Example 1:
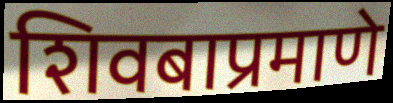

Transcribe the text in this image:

शिवबाप्रमाणे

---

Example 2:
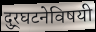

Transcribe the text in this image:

दुर्घटनेविषयी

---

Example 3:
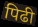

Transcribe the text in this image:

पिढी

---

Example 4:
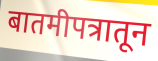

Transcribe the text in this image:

बातमीपत्रातून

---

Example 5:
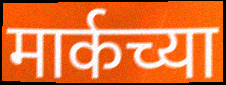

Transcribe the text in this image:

मार्कच्या